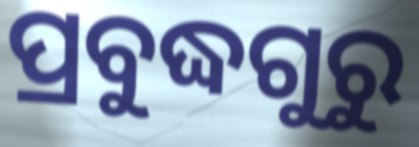
ପ୍ରବୁଦ୍ଧଗୁରୁ